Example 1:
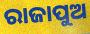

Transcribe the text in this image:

ରାଜାପୁଅ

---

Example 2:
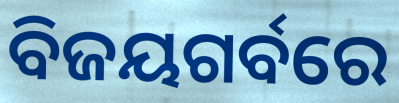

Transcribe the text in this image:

ବିଜୟଗର୍ବରେ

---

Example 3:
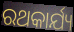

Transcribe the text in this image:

ରଥକାର୍ଯ୍ୟ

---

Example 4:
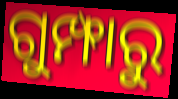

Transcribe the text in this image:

ଗୁମ୍ଫାରୁ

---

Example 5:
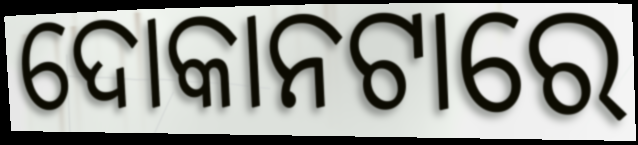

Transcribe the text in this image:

ଦୋକାନଟାରେ